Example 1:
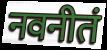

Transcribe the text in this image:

नवनीतं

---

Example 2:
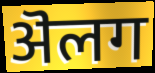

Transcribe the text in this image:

ऄलग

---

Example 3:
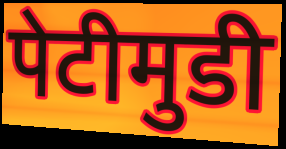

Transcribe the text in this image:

पेटीमुडी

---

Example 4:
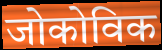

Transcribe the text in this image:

जोकोविक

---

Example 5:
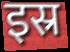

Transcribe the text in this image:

इस्र